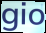
gio